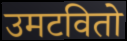
उमटवितो